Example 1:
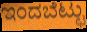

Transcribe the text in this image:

ಇಂದಬೆಟ್ಟು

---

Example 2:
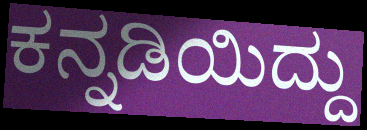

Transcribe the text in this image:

ಕನ್ನಡಿಯಿದ್ದು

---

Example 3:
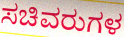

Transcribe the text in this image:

ಸಚಿವರುಗಳ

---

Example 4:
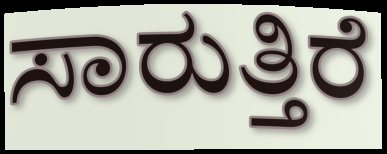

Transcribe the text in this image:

ಸಾರುತ್ತಿರೆ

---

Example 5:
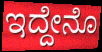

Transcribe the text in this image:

ಇದ್ದೇನೊ